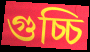
গুচ্চি